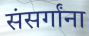
संसर्गांना